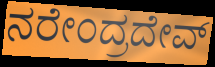
ನರೇಂದ್ರದೇವ್